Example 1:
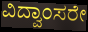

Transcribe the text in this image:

ವಿದ್ವಾಂಸರೇ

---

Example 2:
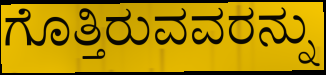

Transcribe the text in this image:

ಗೊತ್ತಿರುವವರನ್ನು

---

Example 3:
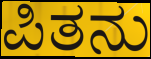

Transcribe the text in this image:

ಪಿತನು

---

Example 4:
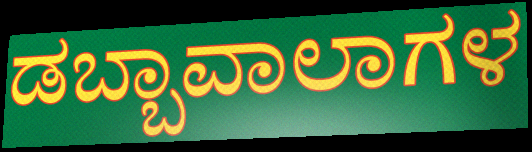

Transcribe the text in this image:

ಡಬ್ಬಾವಾಲಾಗಳ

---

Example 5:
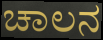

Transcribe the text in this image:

ಚಾಲನ